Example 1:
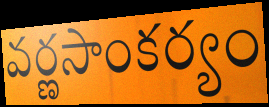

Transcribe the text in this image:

వర్ణసాంకర్యం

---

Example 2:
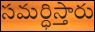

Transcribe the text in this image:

సమర్ధిస్తారు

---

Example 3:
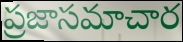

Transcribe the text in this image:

ప్రజాసమాచార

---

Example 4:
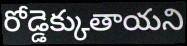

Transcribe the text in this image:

రోడ్డెక్కుతాయని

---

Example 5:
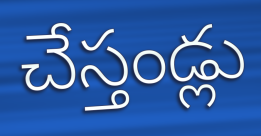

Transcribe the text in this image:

చేస్తండ్లు